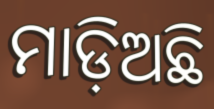
ମାଡ଼ିଅଛି